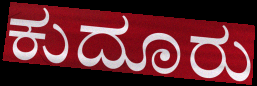
ಕುದೂರು